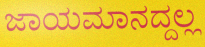
ಜಾಯಮಾನದ್ದಲ್ಲ